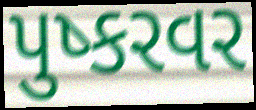
પુષ્કરવર